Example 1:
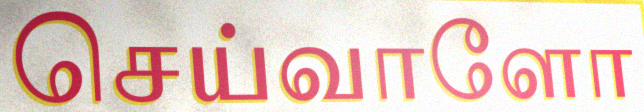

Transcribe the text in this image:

செய்வாளோ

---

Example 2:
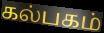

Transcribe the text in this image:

கல்பகம்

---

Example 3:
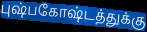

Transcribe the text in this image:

புஷ்பகோஷ்டத்துக்கு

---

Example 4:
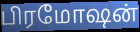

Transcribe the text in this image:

பிரமோஷன்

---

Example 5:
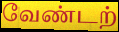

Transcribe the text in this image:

வேண்டற்